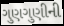
ગુણગુણીની